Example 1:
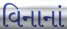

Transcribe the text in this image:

વિનાનાં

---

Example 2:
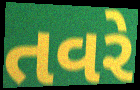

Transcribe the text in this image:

તવરે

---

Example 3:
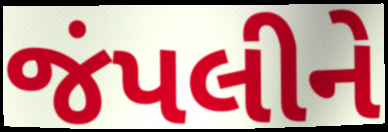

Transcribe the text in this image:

જંપલીને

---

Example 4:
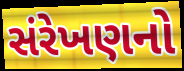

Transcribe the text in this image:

સંરેખણનો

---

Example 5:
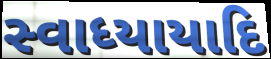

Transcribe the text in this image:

સ્વાધ્યાયાદિ